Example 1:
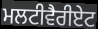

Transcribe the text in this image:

ਮਲਟੀਵੈਰੀਏਟ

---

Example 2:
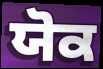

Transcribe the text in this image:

ਯੋਕ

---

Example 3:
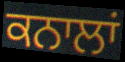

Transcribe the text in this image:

ਕਨਾਲਾਂ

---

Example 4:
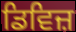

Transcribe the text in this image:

ਡਿਵਿਜ਼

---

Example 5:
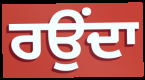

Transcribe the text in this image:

ਰਉਂਦਾ